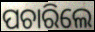
ପଚାରିଲେ